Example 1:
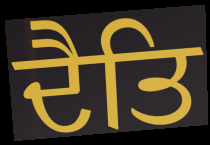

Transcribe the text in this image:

ਦੈਤਿ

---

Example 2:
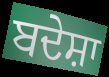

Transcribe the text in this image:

ਬਦੇਸ਼ਾ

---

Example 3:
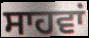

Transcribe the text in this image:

ਸਾਹਵਾਂ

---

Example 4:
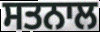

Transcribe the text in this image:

ਸਤਨਾਲ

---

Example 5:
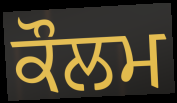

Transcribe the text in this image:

ਕੌਲਮ